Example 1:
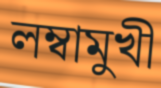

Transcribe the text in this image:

লম্বামুখী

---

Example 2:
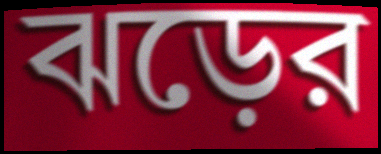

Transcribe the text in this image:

ঝড়ের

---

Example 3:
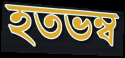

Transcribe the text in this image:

হতভম্ব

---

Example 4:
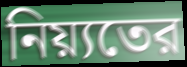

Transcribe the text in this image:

নিয়্যতের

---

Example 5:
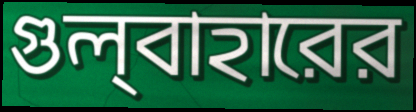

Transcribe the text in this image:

গুল্‌বাহারের